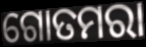
ଗୋତମରା